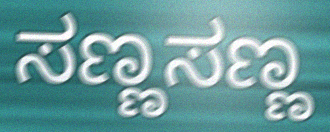
ಸಣ್ಣಸಣ್ಣ